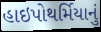
હાઇપોથર્મિયાનું